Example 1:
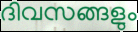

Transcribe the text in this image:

ദിവസങ്ങളും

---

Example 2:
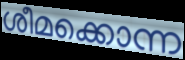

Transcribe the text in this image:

ശീമക്കൊന്ന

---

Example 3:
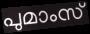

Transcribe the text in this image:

പുമാംസ്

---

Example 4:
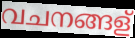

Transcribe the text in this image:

വചനങ്ങള്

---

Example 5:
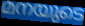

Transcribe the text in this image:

മനയുടെ